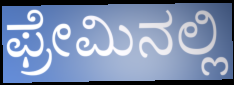
ಫ್ರೇಮಿನಲ್ಲಿ